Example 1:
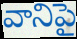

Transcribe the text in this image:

వానిపై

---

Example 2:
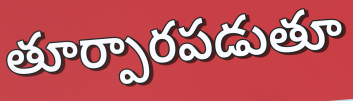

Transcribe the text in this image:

తూర్పారపడుతూ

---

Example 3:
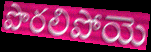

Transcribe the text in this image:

పొరలిపోయె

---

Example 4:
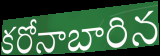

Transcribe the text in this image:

కరోనాబారిన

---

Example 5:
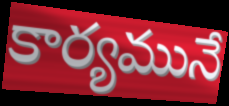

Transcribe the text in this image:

కార్యమునే